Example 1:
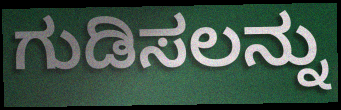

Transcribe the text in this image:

ಗುಡಿಸಲನ್ನು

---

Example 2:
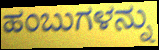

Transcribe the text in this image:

ಹಂಬುಗಳನ್ನು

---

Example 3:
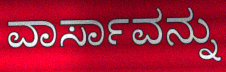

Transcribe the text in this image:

ವಾರ್ಸಾವನ್ನು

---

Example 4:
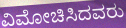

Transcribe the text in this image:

ವಿಮೋಚಿಸಿದವರು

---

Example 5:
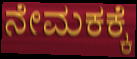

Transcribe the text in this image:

ನೇಮಕಕ್ಕೆ